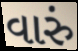
વારું